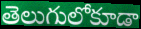
తెలుగులోకూడా